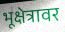
भूक्षेत्रावर